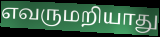
எவருமறியாது